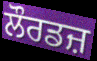
ਲੌਰਡਜ਼